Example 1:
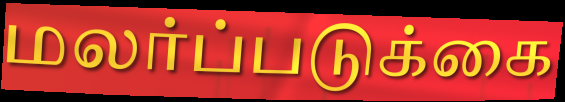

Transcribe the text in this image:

மலர்ப்படுக்கை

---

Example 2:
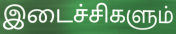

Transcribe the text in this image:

இடைச்சிகளும்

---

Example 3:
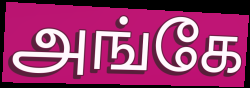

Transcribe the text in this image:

அங்கே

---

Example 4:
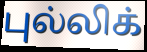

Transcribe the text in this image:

புல்லிக்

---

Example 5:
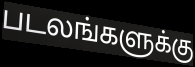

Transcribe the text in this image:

படலங்களுக்கு